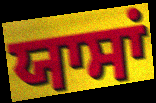
ਯਾਸਾਂ